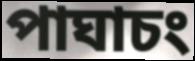
পাঘাচং